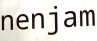
nenjam